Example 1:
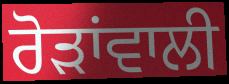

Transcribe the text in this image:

ਰੋੜਾਂਵਾਲੀ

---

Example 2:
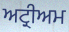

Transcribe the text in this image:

ਅਟ੍ਰੀਅਮ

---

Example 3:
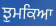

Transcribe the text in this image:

ਝੁਮਕਿਆ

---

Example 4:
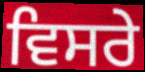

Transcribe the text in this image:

ਵਿਸਰੇ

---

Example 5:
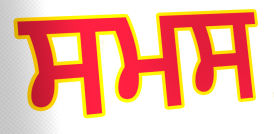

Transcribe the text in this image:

ਸਮਸ